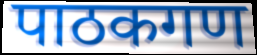
पाठकगण